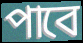
পাবে